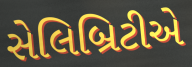
સેલિબ્રિટીએ